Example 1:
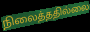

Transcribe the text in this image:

நிலைத்ததில்லை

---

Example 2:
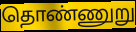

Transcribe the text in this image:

தொண்ணுறு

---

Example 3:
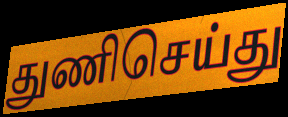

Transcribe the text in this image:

துணிசெய்து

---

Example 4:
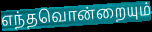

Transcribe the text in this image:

எந்தவொன்றையும்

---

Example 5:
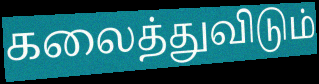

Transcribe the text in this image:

கலைத்துவிடும்